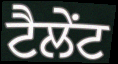
ਟੈਲੇੰਟ